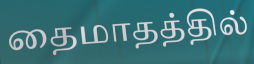
தைமாதத்தில்